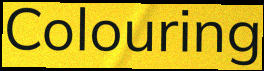
Colouring